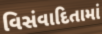
વિસંવાદિતામાં